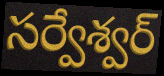
సర్వేశ్వర్